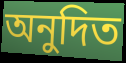
অনুদিত